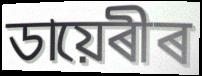
ডায়েৰীৰ